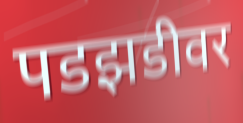
पडझडीवर